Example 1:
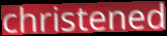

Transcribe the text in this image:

christened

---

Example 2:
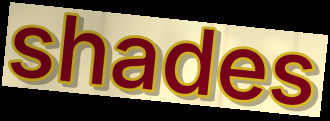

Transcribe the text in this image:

shades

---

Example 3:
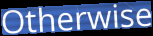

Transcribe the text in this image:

Otherwise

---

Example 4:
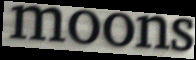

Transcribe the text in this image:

moons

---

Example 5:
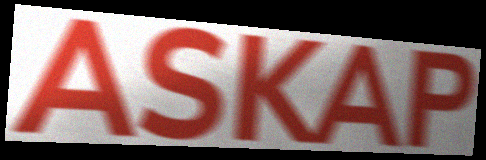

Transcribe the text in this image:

ASKAP